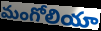
మంగోలియా